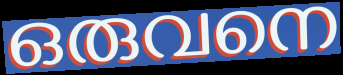
ഒരുവനെ